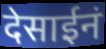
देसाईनं